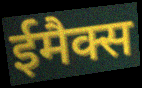
ईमैक्स